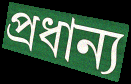
প্রধান্য